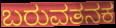
ಬರುವತನಕ